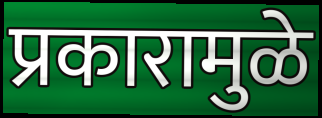
प्रकारामुळे